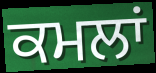
ਕਮਲਾਂ